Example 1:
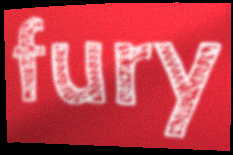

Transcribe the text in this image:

fury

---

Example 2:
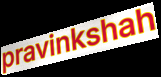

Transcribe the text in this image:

pravinkshah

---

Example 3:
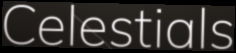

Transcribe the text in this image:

Celestials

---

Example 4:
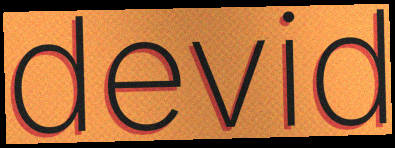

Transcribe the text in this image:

devid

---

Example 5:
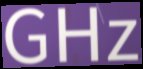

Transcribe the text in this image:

GHz